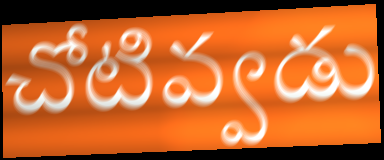
చోటివ్వడు